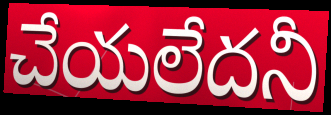
చేయలేదనీ